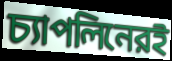
চ্যাপলিনেরই